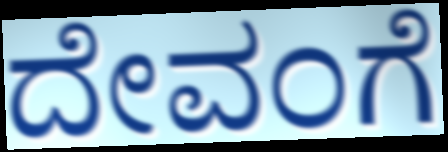
ದೇವಂಗೆ